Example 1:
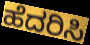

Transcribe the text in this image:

ಹೆದರಿಸಿ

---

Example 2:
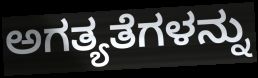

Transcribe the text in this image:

ಅಗತ್ಯತೆಗಳನ್ನು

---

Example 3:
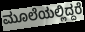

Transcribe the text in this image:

ಮೂಲೆಯಲ್ಲಿದ್ದರೆ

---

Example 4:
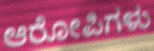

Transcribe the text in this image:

ಆರೋಪಿಗಳು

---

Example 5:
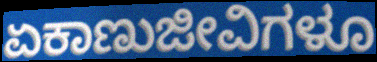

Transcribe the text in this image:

ಏಕಾಣುಜೀವಿಗಳೂ